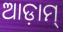
ଆଡ଼ାମ୍